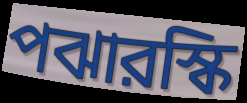
পঝারস্কি